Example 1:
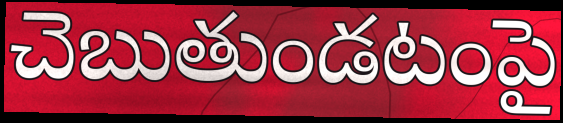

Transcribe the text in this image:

చెబుతుండటంపై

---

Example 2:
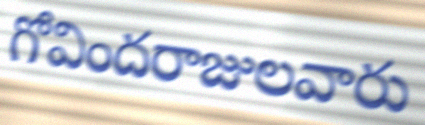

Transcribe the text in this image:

గోవిందరాజులవారు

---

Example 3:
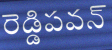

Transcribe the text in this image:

రెడ్డిపవన్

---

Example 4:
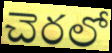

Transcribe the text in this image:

చెరలో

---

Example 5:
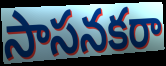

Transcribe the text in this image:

సాసనకరా